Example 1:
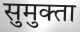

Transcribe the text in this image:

सुमुक्ता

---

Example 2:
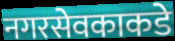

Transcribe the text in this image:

नगरसेवकाकडे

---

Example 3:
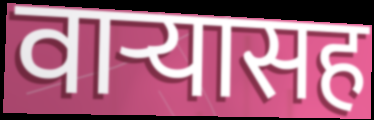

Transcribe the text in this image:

वार्‍यासह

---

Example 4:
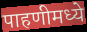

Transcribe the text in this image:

पाहणीमध्ये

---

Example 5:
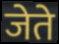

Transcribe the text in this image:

जेते